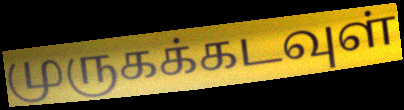
முருகக்கடவுள்